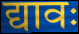
द्यावः